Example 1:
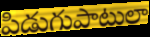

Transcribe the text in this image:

పిడుగుపాటులా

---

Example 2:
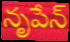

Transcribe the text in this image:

నృపేన్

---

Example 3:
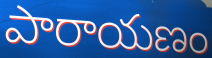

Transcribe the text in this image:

పారాయణం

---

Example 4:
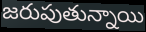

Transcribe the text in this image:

జరుపుతున్నాయి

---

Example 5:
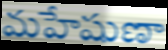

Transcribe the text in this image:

మహేషుణా